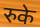
रुके